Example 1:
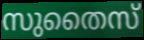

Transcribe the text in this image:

സുതൈസ്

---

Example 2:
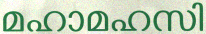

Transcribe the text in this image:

മഹാമഹസി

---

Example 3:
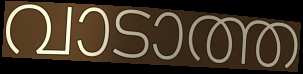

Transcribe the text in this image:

വാടാത്ത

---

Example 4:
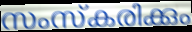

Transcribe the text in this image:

സംസ്‌കരിക്കും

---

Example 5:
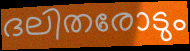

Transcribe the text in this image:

ദലിതരോടും